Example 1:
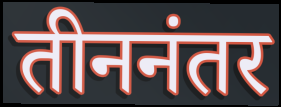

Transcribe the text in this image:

तीननंतर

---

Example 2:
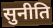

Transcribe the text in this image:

सुनीति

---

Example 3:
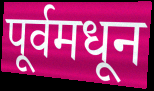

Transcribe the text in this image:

पूर्वमधून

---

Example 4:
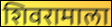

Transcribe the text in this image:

शिवरामाला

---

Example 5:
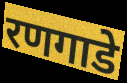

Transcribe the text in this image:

रणगाडे